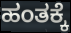
ಹಂತಕ್ಕೆ